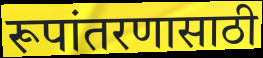
रूपांतरणासाठी